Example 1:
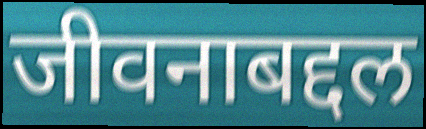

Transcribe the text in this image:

जीवनाबद्दल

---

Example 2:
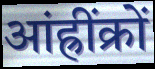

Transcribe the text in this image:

आंह्रींक्रों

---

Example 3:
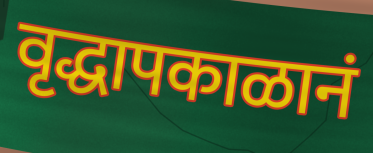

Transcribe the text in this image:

वृद्धापकाळानं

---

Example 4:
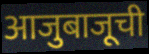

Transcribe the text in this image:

आजुबाजूची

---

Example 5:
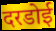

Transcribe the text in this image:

दरडोई